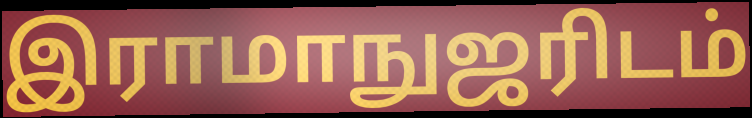
இராமாநுஜரிடம்